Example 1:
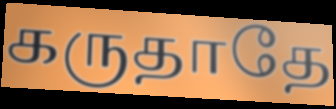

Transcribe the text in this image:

கருதாதே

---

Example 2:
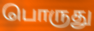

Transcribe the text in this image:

பொருது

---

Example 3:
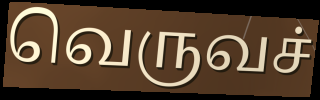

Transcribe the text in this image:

வெருவச்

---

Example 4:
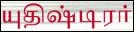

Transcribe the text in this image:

யுதிஷ்டிரர்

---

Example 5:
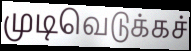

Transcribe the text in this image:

முடிவெடுக்கச்